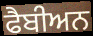
ਫੈਬੀਅਨ